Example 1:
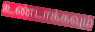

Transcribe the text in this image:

உண்டாக்கவும்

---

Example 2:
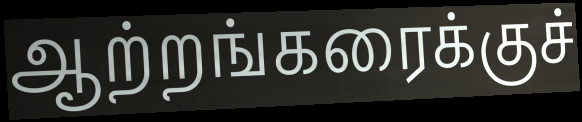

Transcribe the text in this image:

ஆற்றங்கரைக்குச்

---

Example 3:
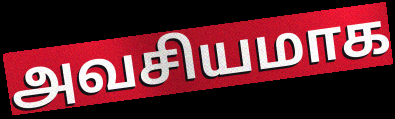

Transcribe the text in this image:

அவசியமாக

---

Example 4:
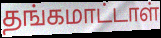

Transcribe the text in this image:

தங்கமாட்டாள்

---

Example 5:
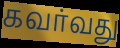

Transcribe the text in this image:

கவர்வது